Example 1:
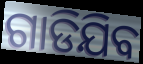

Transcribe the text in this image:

ଗାଡିଯିବ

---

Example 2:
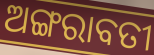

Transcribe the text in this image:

ଅଙ୍ଗରାବତୀ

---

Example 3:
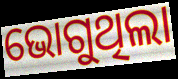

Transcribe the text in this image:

ଭୋଗୁଥିଲା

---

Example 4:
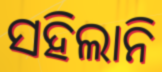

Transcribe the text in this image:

ସହିଲାନି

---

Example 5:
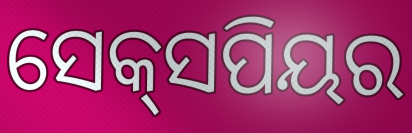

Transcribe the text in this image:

ସେକ୍‌ସପିୟର